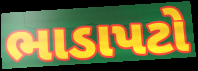
ભાડાપટો